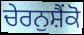
ਚੇਰਨੁਸ਼ੈਂਕੋ